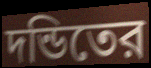
দন্ডিতের